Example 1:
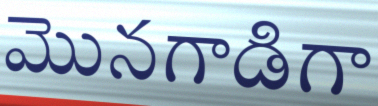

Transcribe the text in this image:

మొనగాడిగా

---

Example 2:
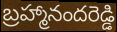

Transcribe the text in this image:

బ్రహ్మానందరెడ్డి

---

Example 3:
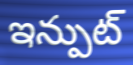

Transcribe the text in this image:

ఇన్పుట్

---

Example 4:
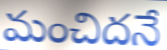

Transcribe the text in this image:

మంచిదనే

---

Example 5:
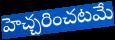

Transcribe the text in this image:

హెచ్చరించటమే